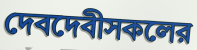
দেবদেবীসকলের